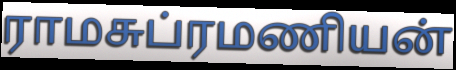
ராமசுப்ரமணியன்